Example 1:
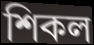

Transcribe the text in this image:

শিকল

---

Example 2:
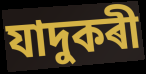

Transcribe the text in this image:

যাদুকৰী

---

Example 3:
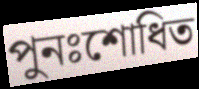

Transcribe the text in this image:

পুনঃশোধিত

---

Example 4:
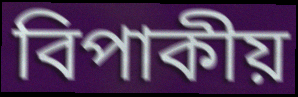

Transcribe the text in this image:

বিপাকীয়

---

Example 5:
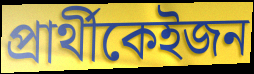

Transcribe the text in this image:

প্ৰাৰ্থীকেইজন